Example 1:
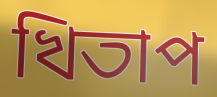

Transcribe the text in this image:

খিতাপ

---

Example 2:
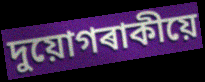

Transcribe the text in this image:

দুয়োগৰাকীয়ে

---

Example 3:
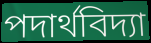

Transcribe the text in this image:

পদাৰ্থবিদ্যা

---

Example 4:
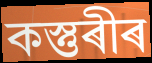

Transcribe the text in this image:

কস্তুৰীৰ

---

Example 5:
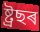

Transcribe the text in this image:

ষ্ট্ৰছৰ